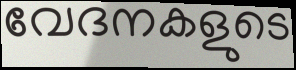
വേദനകളുടെ